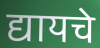
द्यायचे